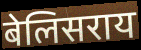
बेलिसराय